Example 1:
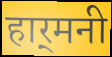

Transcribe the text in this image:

हार्मनी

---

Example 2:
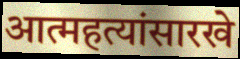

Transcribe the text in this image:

आत्महत्यांसारखे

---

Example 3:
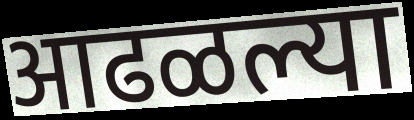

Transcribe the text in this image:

आढळल्या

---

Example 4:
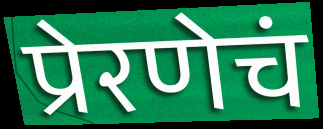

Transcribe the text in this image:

प्रेरणेचं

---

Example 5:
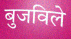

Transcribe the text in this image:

बुजविले